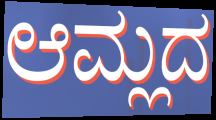
ಆಮ್ಲದ